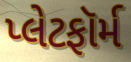
પ્લેટફૉર્મ